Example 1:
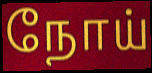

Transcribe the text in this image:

நோய்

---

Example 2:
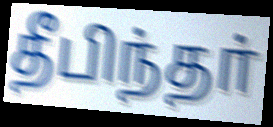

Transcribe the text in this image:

தீபிந்தர்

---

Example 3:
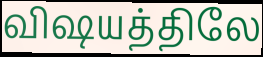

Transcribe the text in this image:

விஷயத்திலே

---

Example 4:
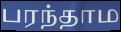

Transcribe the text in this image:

பரந்தாம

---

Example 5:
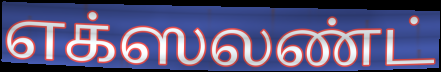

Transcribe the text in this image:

எக்ஸலண்ட்